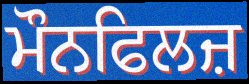
ਮੌਨਫਿਲਜ਼